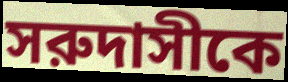
সরুদাসীকে